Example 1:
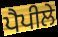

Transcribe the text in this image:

ਪੈਪੀਲੇ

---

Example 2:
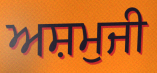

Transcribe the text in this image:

ਅਸ਼ਮੁਜੀ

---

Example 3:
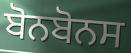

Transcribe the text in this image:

ਬੋਨਬੋਨਸ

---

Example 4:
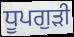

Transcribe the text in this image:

ਧੂਪਗੁੜੀ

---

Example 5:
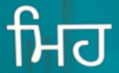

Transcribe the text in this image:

ਮਿਹ